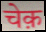
चेक़